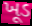
ખૂડ